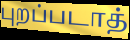
புறப்படாத்